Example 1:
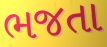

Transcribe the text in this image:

ભજતા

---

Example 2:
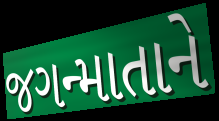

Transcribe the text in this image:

જગન્માતાને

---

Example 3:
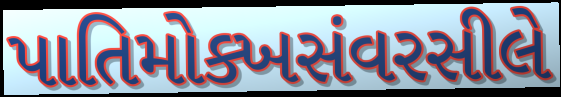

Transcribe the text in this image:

પાતિમોક્ખસંવરસીલે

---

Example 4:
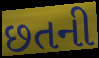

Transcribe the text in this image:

છતની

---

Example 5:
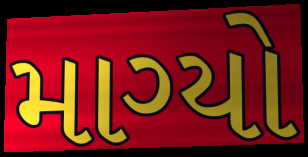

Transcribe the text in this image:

માગ્યો